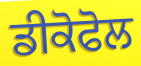
ਡੀਕੋਫੋਲ